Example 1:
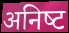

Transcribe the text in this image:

अनिष्‍ट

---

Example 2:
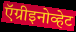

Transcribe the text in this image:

ऍग्रीइनोव्हेट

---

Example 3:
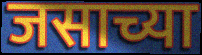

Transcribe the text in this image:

जसाच्या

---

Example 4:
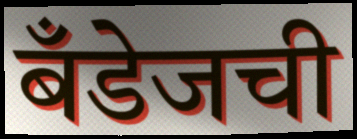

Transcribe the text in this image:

बँडेजची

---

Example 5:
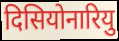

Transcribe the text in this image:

दिसियोनारियु